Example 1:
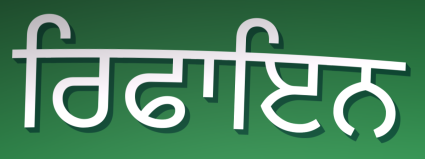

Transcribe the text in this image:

ਰਿਫਾਇਨ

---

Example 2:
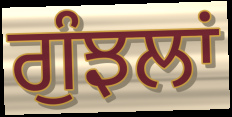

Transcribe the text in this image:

ਗੁੰਝਲਾਂ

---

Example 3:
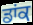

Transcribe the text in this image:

ਡਾਂਕ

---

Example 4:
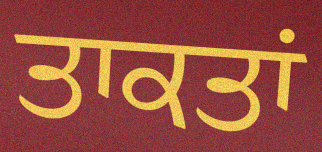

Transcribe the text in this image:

ਤਾਕਤਾਂ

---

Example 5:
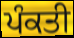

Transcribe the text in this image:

ਪੰਕਤੀ